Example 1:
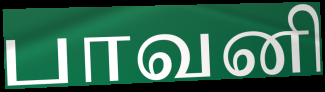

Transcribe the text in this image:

பாவனி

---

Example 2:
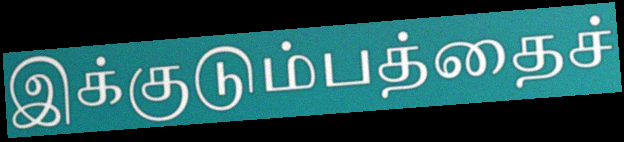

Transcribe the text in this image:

இக்குடும்பத்தைச்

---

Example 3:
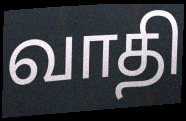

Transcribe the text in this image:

வாதி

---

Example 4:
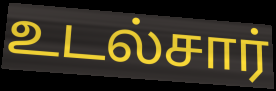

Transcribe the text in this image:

உடல்சார்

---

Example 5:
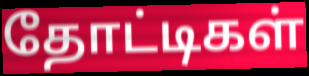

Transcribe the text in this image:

தோட்டிகள்